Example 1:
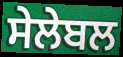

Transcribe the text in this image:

ਸੇਲੇਬਲ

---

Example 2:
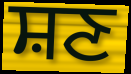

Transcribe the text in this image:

ਸ਼ਣ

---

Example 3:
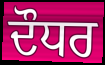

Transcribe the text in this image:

ਦੌਧਰ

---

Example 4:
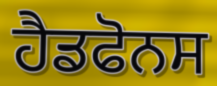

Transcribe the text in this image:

ਹੈਡਫੋਨਸ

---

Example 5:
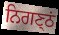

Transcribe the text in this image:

ਨਿਗਣ੍ਠਂ